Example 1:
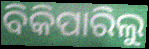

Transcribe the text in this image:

ବିକିପାରିଲୁ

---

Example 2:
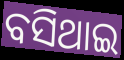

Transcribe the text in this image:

ବସିଥାଇ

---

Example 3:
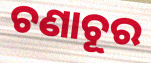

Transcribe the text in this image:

ଚଣାଚୂର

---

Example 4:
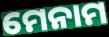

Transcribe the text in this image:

ମେନାମ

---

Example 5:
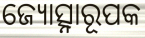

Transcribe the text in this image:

ଜ୍ୟୋତ୍ସ୍ନାରୂପକ